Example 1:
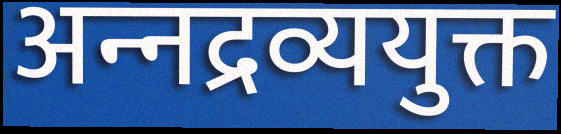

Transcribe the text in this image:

अन्नद्रव्ययुक्त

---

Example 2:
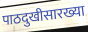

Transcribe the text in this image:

पाठदुखीसारख्या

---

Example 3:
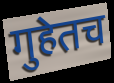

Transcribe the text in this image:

गुहेतच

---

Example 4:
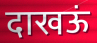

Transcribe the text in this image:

दाखऊं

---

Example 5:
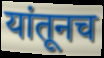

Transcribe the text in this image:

यांतूनच